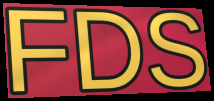
FDS